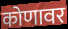
कोणावर